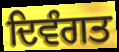
ਦਿਵੰਗਤ